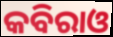
କବିରାଓ